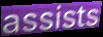
assists